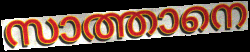
സാത്താനെ